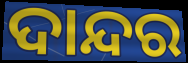
ଦାନ୍ଦର